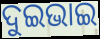
ଦୁଇଭାଇ